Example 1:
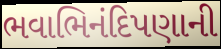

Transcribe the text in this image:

ભવાભિનંદિપણાની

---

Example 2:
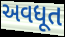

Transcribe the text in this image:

અવધૂત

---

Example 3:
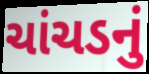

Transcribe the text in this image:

ચાંચડનું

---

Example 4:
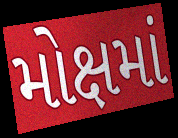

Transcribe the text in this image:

મોક્ષમાં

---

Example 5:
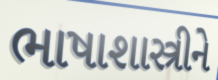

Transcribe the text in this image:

ભાષાશાસ્ત્રીને